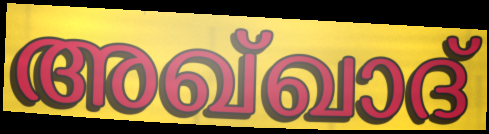
അഖ്ഖാദ്